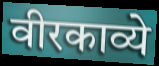
वीरकाव्ये